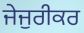
ਜੇਜੁਰੀਕਰ